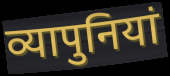
व्यापुनियां